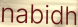
nabidh